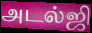
அடல்ஜி